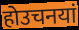
होउचनयां